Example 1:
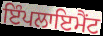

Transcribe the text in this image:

ਇੰਪਲਾਇਮੈਂਟ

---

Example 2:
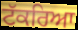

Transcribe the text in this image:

ਟੱਕਰਿਆ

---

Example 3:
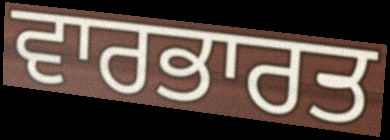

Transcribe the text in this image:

ਵਾਰਭਾਰਤ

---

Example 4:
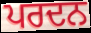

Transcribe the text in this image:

ਪਰਦਨ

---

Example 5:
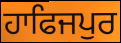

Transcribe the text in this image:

ਹਾਫਿਜਪੁਰ